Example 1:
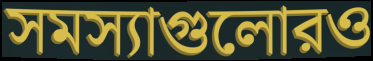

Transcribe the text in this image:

সমস্যাগুলোরও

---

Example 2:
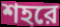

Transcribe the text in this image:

শহরে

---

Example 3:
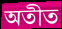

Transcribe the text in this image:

অতীত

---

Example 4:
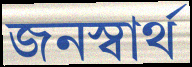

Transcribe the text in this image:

জনস্বার্থ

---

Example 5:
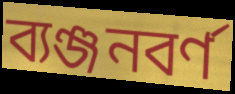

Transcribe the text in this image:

ব্যঞ্জনবর্ণ